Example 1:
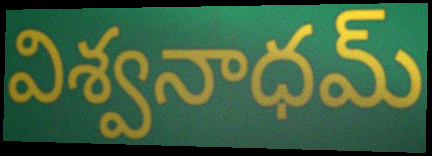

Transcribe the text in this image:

విశ్వనాధమ్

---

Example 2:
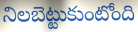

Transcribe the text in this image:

నిలబెట్టుకుంటోంది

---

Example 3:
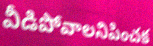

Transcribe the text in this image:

వీడిపోవాలనిపించక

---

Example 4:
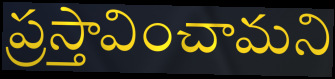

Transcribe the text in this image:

ప్రస్తావించామని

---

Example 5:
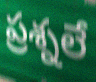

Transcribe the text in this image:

ప్రశ్నలే